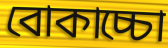
বোকাচ্চো